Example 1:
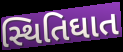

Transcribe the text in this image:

સ્થિતિઘાત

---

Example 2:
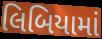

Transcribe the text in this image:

લિબિયામાં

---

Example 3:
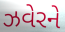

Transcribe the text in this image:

ઝવેરને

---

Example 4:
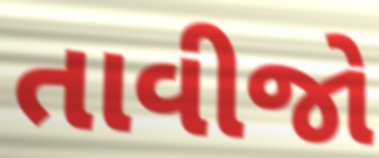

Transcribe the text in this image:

તાવીજો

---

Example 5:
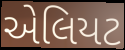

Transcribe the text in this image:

એલિયટ